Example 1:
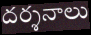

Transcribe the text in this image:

దర్శనాలు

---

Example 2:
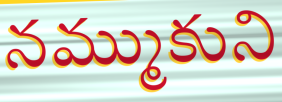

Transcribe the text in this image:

నమ్ముకుని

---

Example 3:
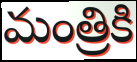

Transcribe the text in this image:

మంత్రికి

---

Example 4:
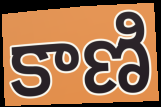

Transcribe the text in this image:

కాణి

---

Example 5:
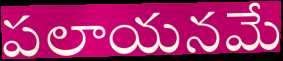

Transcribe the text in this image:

పలాయనమే